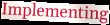
Implementing